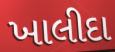
ખાલીદા